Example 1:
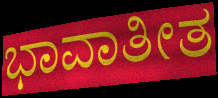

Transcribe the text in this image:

ಭಾವಾತೀತ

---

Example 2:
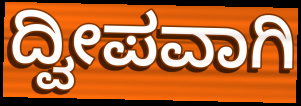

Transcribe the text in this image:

ದ್ವೀಪವಾಗಿ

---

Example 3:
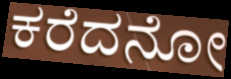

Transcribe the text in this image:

ಕರೆದನೋ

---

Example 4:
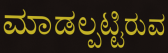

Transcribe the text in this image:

ಮಾಡಲ್ಪಟ್ಟಿರುವ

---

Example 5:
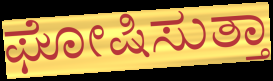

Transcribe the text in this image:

ಘೋಷಿಸುತ್ತಾ